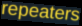
repeaters